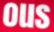
ous